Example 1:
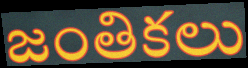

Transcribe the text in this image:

జంతికలు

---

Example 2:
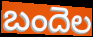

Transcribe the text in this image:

బందెల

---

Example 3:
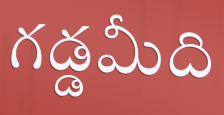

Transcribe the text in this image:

గడ్డమీది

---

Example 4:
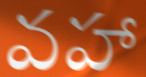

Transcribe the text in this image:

వహా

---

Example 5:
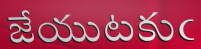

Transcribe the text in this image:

జేయుటకుఁ